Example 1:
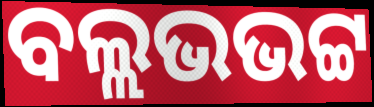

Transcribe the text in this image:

ବଲ୍ଲଭଭଟ୍ଟ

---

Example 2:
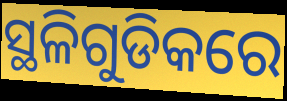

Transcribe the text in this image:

ସ୍ଥଳିଗୁଡିକରେ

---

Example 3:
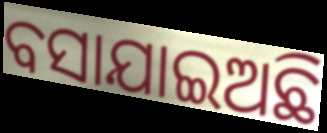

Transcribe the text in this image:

ବସାଯାଇଅଛି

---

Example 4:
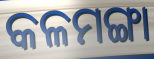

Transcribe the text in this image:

କଳମଙ୍ଗା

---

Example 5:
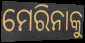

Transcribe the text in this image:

ମେରିନାକୁ